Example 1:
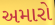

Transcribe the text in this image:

અમારો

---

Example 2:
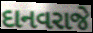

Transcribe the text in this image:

દાનવરાજે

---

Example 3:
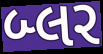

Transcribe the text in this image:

બ્લર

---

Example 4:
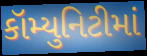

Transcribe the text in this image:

કૉમ્યુનિટીમાં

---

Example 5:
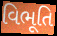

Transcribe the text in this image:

વિભૂતિ